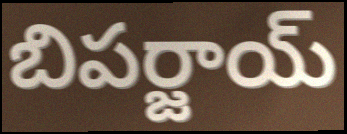
బిపర్జాయ్